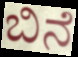
ಬಿನೆ